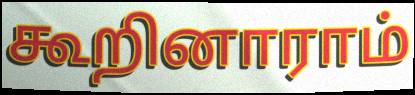
கூறினாராம்